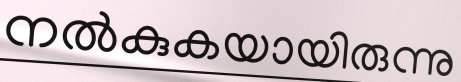
നൽകുകയായിരുന്നു